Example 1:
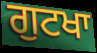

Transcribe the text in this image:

ਗੁਟਖਾ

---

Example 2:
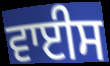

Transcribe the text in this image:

ਵਾਈਸ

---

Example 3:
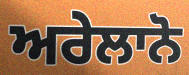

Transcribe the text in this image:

ਅਰੇਲਾਨੋ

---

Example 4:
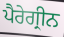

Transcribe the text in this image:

ਪੈਰੇਗ੍ਰੀਨ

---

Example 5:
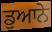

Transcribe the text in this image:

ਡੁਆਨੇ